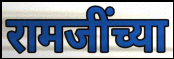
रामजींच्या